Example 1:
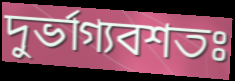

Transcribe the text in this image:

দুৰ্ভাগ্যবশতঃ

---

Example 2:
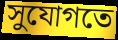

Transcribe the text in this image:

সুযোগতে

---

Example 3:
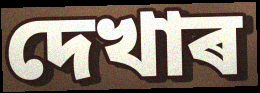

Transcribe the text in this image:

দেখাৰ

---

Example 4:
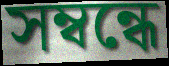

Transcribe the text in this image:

সম্বন্ধে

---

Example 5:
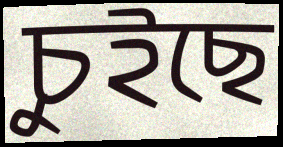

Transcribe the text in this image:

চুইছে